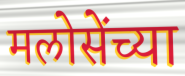
मलोसेंच्या